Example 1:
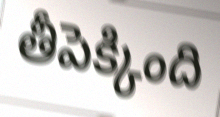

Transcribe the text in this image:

తీపెక్కింది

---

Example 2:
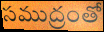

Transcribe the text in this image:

సముద్రంతో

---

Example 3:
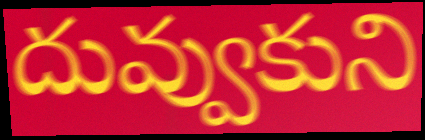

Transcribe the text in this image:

దువ్వుకుని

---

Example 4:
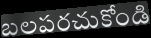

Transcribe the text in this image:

బలపరచుకోండి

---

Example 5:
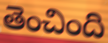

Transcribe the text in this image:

తెంచింది